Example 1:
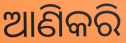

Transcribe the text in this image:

ଆଣିକରି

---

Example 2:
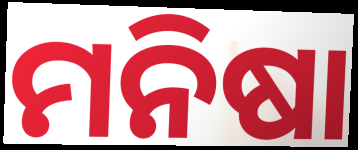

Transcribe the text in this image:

ମନିଷା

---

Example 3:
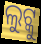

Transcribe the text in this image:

ଲୁଟ୍କୁ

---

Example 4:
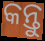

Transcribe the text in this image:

କନ୍ତୁ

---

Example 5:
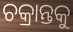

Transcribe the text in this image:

ଚକ୍ରାନ୍ତକୁ